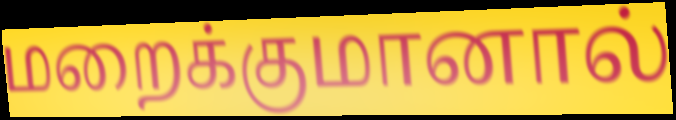
மறைக்குமானால்